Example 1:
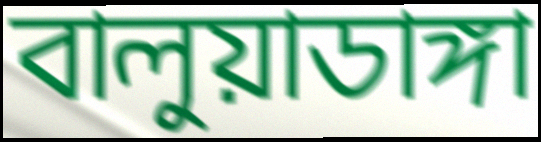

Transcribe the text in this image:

বালুয়াডাঙ্গা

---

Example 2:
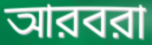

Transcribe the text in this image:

আরবরা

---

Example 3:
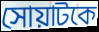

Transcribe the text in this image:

সোয়াটকে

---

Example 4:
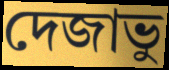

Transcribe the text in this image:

দেজাভু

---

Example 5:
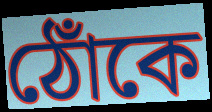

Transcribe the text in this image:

ঠোঁকে